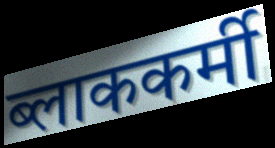
ब्लाककर्मी